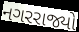
નગરરાજ્યો